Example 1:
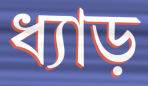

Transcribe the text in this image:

ধ্যাড়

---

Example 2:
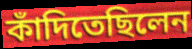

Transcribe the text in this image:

কাঁদিতেছিলেন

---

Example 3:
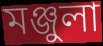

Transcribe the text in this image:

মঞ্জুলা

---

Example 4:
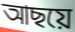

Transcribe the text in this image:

আছয়ে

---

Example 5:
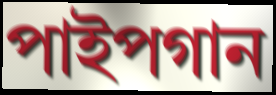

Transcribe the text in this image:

পাইপগান